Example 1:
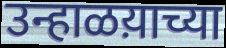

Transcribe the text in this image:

उन्हाळय़ाच्या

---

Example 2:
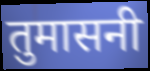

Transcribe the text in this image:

तुमासनी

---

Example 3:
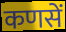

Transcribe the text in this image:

कणसें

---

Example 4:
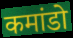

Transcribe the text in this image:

कमांडो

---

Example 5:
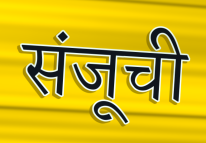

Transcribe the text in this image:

संजूची